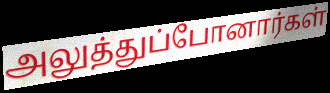
அலுத்துப்போனார்கள்